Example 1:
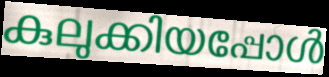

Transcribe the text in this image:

കുലുക്കിയപ്പോൾ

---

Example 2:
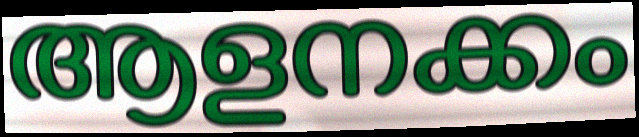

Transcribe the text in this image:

ആളനക്കം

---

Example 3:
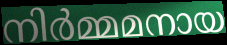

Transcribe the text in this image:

നിർമ്മമനായ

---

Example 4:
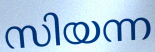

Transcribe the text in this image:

സിയന്ന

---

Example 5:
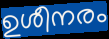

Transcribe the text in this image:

ഉശീനരം